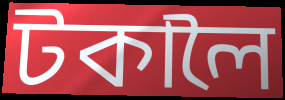
টকালৈ